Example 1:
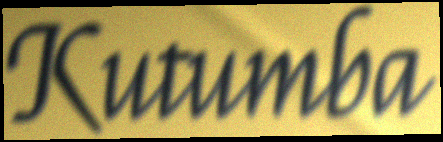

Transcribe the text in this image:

Kutumba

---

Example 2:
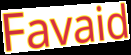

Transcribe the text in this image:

Favaid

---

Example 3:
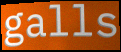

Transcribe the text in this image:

galls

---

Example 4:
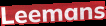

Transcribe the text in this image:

Leemans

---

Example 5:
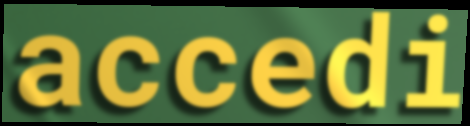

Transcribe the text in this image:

accedi